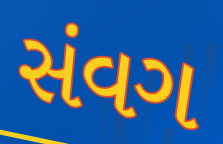
સંવગ